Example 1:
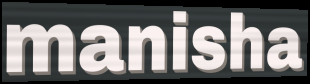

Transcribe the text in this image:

manisha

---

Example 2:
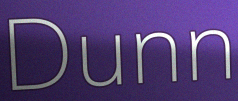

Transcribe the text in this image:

Dunn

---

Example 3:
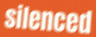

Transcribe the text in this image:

silenced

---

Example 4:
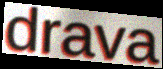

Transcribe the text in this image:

drava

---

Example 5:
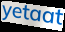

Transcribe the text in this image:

yetaat